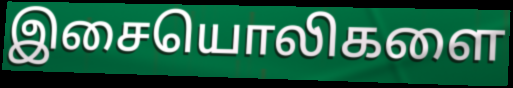
இசையொலிகளை